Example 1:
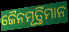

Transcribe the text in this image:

ଜୈନମୂର୍ତ୍ତିମାନ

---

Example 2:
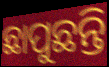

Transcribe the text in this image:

ଛାପୁଛନ୍ତି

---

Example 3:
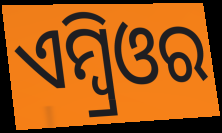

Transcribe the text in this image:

ଏମ୍ବ୍ରିଓର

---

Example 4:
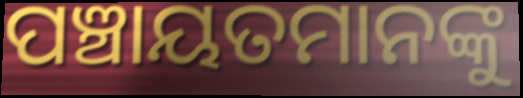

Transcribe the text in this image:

ପଞ୍ଚାୟତମାନଙ୍କୁ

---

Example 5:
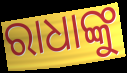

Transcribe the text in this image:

ରାଧାଙ୍କୁ